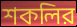
শকলির